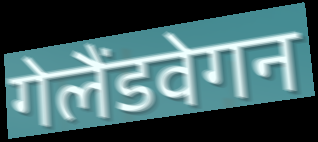
गेलैंडवेगन